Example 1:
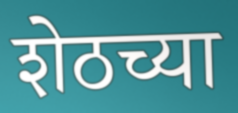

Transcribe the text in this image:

शेठच्या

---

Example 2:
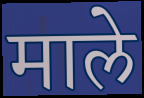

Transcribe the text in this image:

माले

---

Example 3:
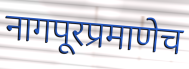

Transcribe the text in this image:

नागपूरप्रमाणेच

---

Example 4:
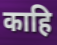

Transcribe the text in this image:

काहि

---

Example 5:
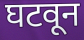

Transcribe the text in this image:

घटवून